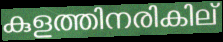
കുളത്തിനരികില്